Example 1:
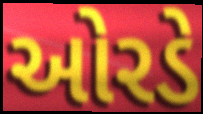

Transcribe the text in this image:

ઓરડે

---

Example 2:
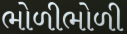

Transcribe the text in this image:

ભોળીભોળી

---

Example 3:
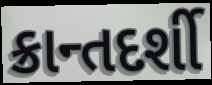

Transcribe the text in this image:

ક્રાન્તદર્શી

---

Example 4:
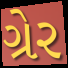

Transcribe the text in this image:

ગ્રેર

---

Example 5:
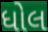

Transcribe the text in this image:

ધોલ